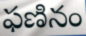
ఫణినం